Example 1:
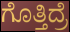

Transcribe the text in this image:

ಗೊತ್ತಿದ್ರೆ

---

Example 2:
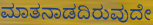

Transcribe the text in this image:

ಮಾತನಾಡದಿರುವುದೇ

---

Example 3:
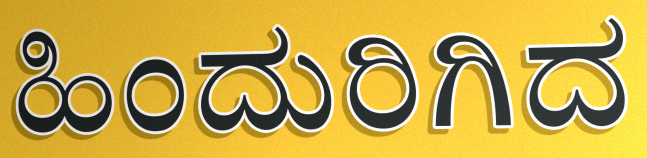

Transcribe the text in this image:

ಹಿಂದುರಿಗಿದ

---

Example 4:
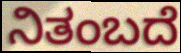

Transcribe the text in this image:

ನಿತಂಬದೆ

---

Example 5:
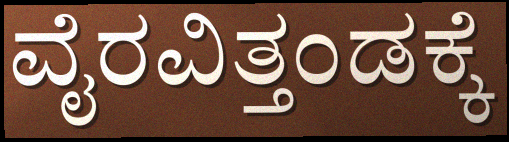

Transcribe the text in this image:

ವೈರವಿತ್ತಂಡಕ್ಕೆ